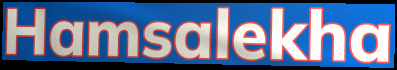
Hamsalekha